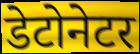
डेटोनेटर